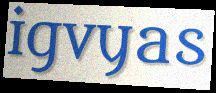
igvyas